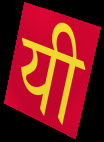
यी